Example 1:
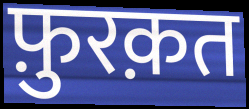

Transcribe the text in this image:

फ़ुरक़त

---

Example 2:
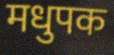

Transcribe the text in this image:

मधुपक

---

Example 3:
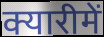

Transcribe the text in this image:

क्यारीमें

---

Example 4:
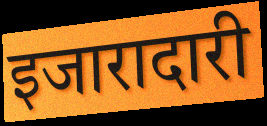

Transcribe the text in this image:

इजारादारी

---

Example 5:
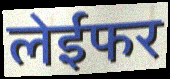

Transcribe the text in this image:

लेईफर